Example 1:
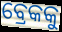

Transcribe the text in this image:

ବ୍ରେକକୁ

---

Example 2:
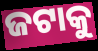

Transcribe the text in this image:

ଜଟାକୁ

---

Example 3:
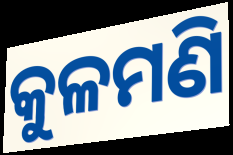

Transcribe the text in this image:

କୁଳମଣି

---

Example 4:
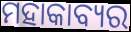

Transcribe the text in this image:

ମହାକାବ୍ୟର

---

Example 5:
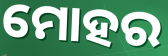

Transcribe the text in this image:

ମୋହର